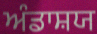
ਅੰਡਾਸ਼ਯ